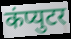
कंप्युटर